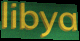
libya